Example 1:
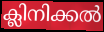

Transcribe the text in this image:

ക്ലിനിക്കൽ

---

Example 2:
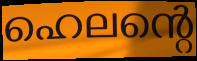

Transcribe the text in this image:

ഹെലന്റെ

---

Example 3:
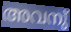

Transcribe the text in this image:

അവനു്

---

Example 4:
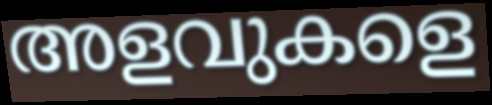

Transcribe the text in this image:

അളവുകളെ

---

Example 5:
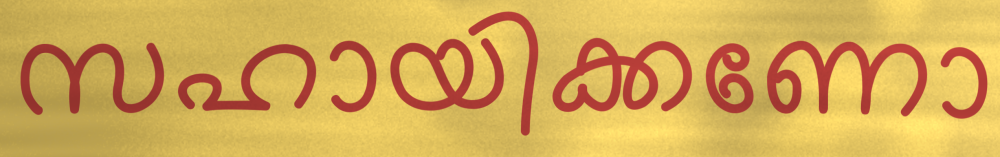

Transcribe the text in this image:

സഹായിക്കണോ